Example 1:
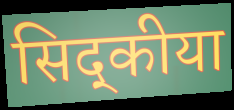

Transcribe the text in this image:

सिद्‌कीया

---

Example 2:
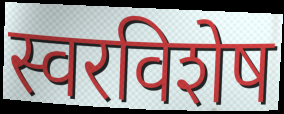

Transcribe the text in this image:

स्वरविशेष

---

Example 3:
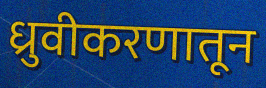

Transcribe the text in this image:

ध्रुवीकरणातून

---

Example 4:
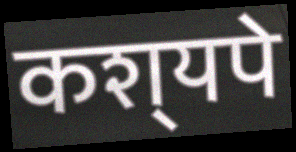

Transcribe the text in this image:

कश्यपे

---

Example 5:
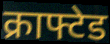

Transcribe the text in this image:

क्राफ्टेड